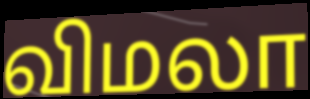
விமலா